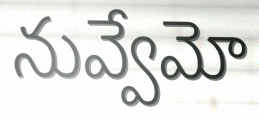
నువ్వేమో